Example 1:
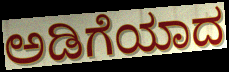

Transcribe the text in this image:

ಅಡಿಗೆಯಾದ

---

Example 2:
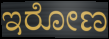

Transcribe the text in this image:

ಇರೋಣ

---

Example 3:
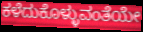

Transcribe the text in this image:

ಕಳೆದುಕೊಳ್ಳುವಂತೆಯೇ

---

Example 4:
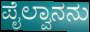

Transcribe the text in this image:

ಪೈಲ್ವಾನನು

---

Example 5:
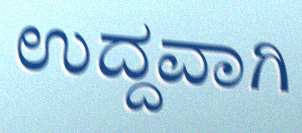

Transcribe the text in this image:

ಉದ್ದವಾಗಿ